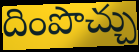
దింపొచ్చు